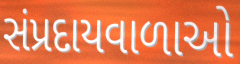
સંપ્રદાયવાળાઓ